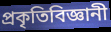
প্রকৃতিবিজ্ঞানী